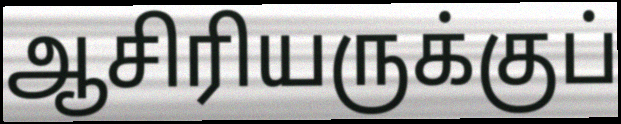
ஆசிரியருக்குப்